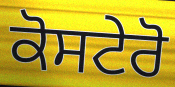
ਕੋਸਟੇਰੋ